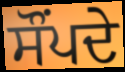
ਸੌਂਪਦੇ